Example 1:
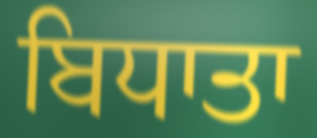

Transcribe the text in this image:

ਬਿਧਾਤਾ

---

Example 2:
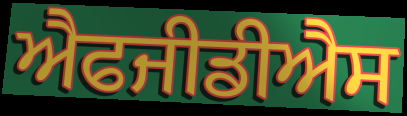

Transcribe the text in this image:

ਐਫਜੀਡੀਐਸ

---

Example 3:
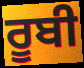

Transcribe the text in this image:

ਰੂਬੀ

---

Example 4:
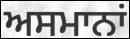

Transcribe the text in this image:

ਅਸਮਾਨਾਂ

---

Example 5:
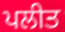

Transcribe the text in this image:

ਪਲੀਤ